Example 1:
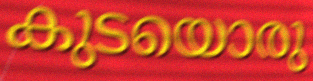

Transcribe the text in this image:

കുടയൊരു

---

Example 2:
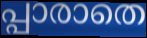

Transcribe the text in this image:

പ്പാരാതെ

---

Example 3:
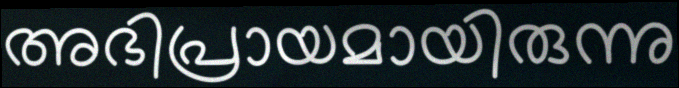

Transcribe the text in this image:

അഭിപ്രായമായിരുന്നു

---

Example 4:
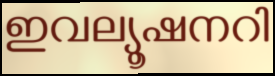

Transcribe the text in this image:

ഇവല്യൂഷനറി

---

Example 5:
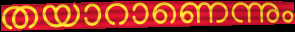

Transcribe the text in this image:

തയാറാണെന്നും